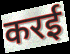
करई